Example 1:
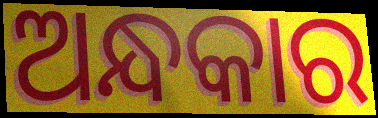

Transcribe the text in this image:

ଅନ୍ଧକାର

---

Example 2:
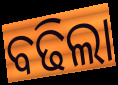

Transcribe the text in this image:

ବଢିଲା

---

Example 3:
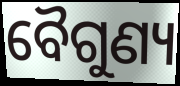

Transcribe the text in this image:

ବୈଗୁଣ୍ୟ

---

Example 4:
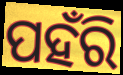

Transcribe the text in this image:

ପହଁରି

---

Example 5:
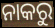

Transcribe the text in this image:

ନାକରୁ